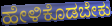
ಹೇಳಿಕೊಡಬೇಕು